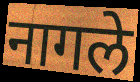
नागले